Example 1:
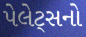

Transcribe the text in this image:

પેલેટ્સનો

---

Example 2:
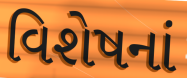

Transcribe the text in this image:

વિશેષનાં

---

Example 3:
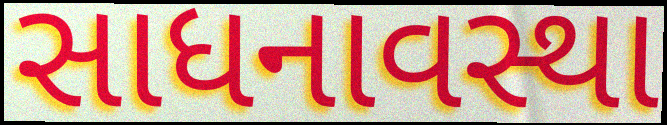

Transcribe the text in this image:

સાધનાવસ્થા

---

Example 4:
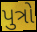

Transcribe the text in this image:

પુત્રો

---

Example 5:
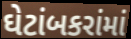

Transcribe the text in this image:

ઘેટાંબકરાંમાં